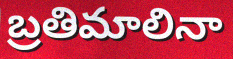
బ్రతిమాలినా